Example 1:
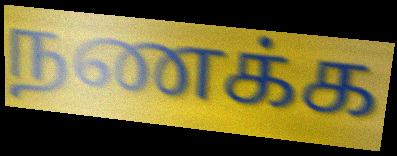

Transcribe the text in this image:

நணக்க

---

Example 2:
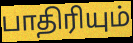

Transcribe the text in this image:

பாதிரியும்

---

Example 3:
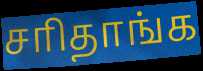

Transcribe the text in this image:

சரிதாங்க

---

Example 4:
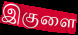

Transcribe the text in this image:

இகுளை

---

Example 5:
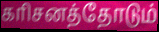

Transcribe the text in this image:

கரிசனத்தோடும்